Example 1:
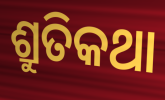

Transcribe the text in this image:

ଶ୍ରୁତିକଥା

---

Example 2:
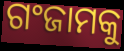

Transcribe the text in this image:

ଗଂଜାମକୁ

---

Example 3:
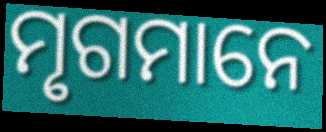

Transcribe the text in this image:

ମୃଗମାନେ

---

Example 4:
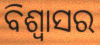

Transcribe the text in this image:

ବିଶ୍ୱାସର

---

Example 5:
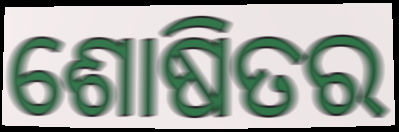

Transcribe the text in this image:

ଶୋଷିତର